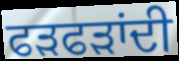
ਫੜਫੜਾਂਦੀ